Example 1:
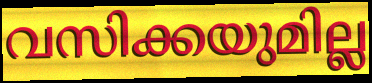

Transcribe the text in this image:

വസിക്കയുമില്ല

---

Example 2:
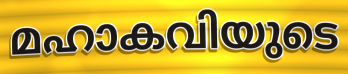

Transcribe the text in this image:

മഹാകവിയുടെ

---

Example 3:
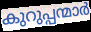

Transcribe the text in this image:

കുറുപ്പന്മാർ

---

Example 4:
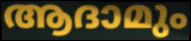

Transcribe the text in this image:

ആദാമും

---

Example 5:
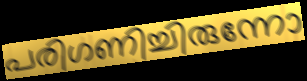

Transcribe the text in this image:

പരിഗണിച്ചിരുന്നോ